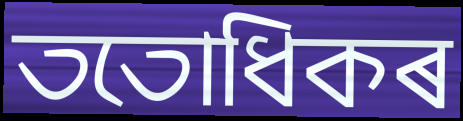
ততোধিকৰ